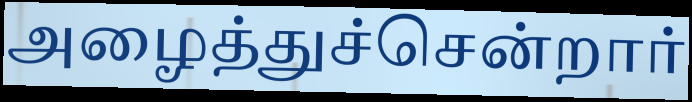
அழைத்துச்சென்றார்